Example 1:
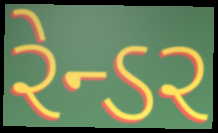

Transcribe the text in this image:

રેન્ડર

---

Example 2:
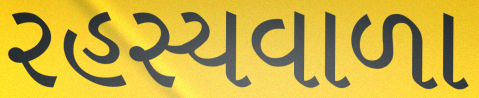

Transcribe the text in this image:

રહસ્યવાળા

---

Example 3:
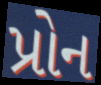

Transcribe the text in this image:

પ્રોન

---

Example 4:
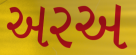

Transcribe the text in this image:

અરઅ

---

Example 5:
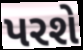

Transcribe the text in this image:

પરશે